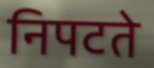
निपटते